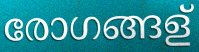
രോഗങ്ങള്